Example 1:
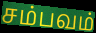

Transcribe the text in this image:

சம்பவம்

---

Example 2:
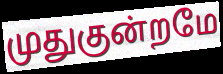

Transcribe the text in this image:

முதுகுன்றமே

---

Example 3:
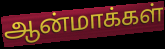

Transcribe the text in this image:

ஆன்மாக்கள்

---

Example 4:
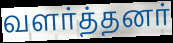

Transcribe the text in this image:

வளர்த்தனர்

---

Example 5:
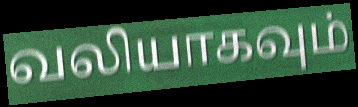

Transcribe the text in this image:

வலியாகவும்